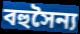
বহুসৈন্য